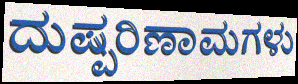
ದುಷ್ಪರಿಣಾಮಗಳು